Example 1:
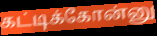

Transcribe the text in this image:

கட்டிக்கோன்னு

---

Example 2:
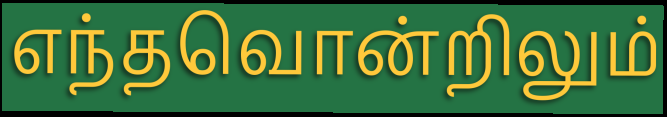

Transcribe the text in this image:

எந்தவொன்றிலும்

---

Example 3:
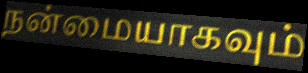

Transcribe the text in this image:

நன்மையாகவும்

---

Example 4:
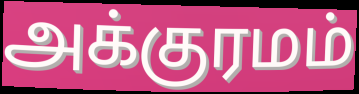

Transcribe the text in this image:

அக்குரமம்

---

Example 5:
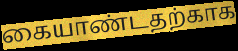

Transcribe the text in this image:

கையாண்டதற்காக